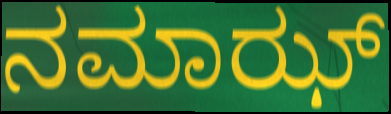
ನಮಾಝ್